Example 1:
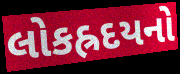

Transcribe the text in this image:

લોકહ્રદયનો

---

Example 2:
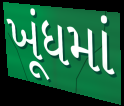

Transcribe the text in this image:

ખૂંધમાં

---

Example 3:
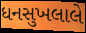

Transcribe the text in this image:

ધનસુખલાલે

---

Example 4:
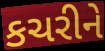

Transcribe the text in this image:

કચરીને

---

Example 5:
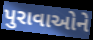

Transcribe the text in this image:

પુરાવાઓને